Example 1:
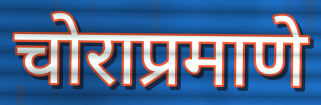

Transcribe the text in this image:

चोराप्रमाणे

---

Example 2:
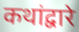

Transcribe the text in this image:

कथांद्वारे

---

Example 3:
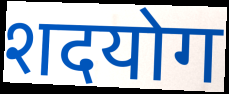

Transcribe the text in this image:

शदयोग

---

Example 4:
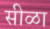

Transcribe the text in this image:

सीळा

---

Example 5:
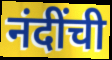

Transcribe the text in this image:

नंदींची